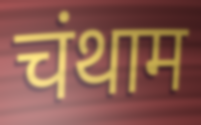
चंथाम